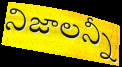
నిజాలన్నీ